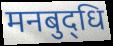
मनबुद्धि